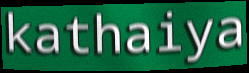
kathaiya